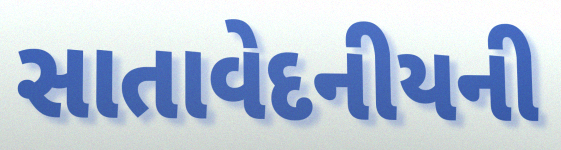
સાતાવેદનીયની